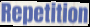
Repetition